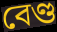
বেণ্ড